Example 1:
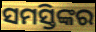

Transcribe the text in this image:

ସମସ୍ତିଙ୍କର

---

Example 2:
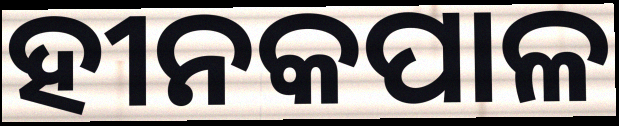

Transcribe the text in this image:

ହୀନକପାଳ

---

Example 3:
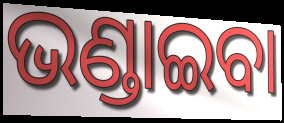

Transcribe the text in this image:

ଭଣ୍ଡାଇବା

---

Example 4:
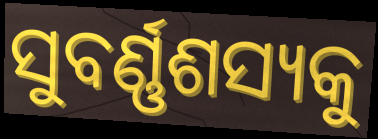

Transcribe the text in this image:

ସୁବର୍ଣ୍ଣଶସ୍ୟକୁ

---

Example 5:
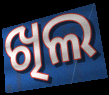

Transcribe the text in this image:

ଖିଲ